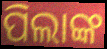
ପିଲାଙ୍କ